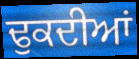
ਢੁਕਦੀਆਂ